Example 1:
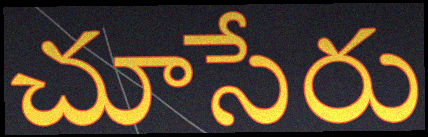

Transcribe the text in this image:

చూసేరు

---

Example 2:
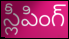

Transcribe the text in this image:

స్లీపింగ్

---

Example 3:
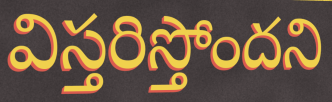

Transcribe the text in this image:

విస్తరిస్తోందని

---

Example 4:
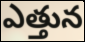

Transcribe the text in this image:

ఎత్తున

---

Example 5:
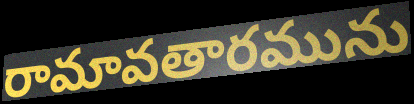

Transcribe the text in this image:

రామావతారమును